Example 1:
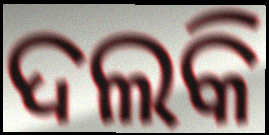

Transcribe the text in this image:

ଦଲକି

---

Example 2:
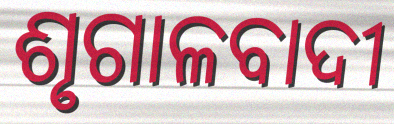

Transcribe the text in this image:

ଶୃଗାଳବାଦୀ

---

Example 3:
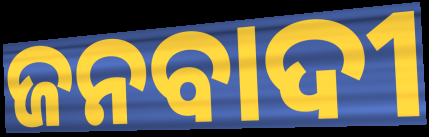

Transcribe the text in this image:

ଜନବାଦୀ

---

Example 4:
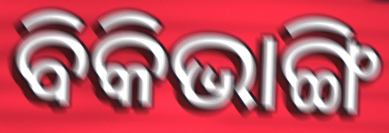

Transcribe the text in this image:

ବିକିଭାଙ୍ଗି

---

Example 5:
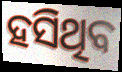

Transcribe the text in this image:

ହସିଥିବ